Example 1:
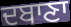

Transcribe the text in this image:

ਦਬਾਣਾ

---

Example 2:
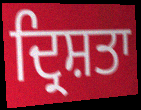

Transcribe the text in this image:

ਦ੍ਰਿਸ਼ਤਾ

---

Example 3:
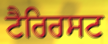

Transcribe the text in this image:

ਟੈਰਿਰਸਟ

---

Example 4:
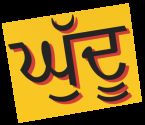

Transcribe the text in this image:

ਘੁੱਦੂ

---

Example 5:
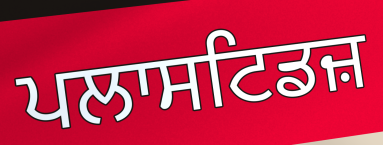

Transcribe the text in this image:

ਪਲਾਸਟਿਡਜ਼